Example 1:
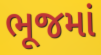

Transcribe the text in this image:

ભૂજમાં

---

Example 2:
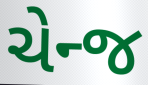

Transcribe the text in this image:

ચેન્જ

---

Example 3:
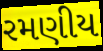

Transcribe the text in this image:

રમણીય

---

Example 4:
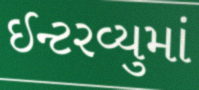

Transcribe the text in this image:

ઈન્ટરવ્યુમાં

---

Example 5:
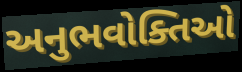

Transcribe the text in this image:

અનુભવોક્તિઓ